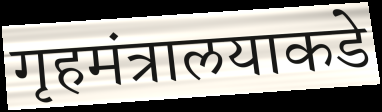
गृहमंत्रालयाकडे